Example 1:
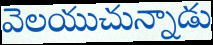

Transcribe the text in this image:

వెలయుచున్నాడు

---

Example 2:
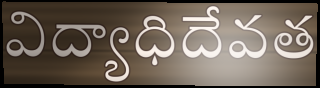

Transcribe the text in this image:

విద్యాధిదేవత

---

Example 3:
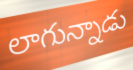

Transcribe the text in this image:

లాగున్నాడు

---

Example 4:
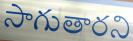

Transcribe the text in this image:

సాగుతారని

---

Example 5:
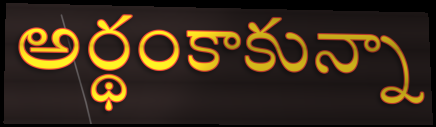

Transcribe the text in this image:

అర్థంకాకున్నా